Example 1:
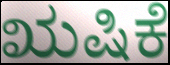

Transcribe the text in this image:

ಋಷಿಕೆ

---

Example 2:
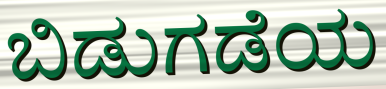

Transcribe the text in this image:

ಬಿಡುಗಡೆಯ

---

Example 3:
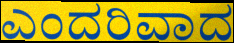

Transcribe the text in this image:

ಎಂದರಿವಾದ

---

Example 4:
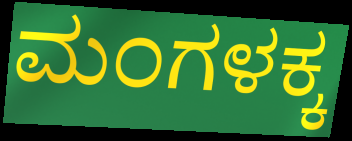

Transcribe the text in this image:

ಮಂಗಳಕ್ಕ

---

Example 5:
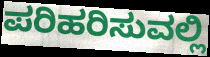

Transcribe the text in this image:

ಪರಿಹರಿಸುವಲ್ಲಿ